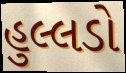
હુલ્લડો